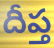
దీప్త